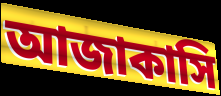
আজাকাসি